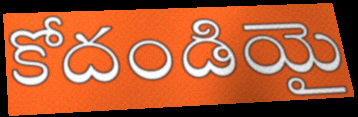
కోదండియై